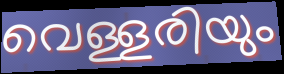
വെള്ളരിയും